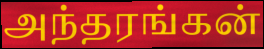
அந்தரங்கன்